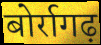
बोर्रागढ़